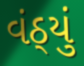
વંઠ્યું